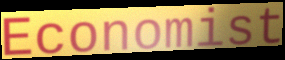
Economist